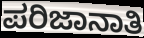
ಪರಿಜಾನಾತಿ